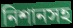
নিশানসহ